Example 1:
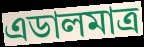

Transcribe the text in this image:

এডালমাত্ৰ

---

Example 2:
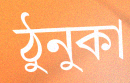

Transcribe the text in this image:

ঠুনুকা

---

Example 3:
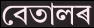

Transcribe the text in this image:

বেতালৰ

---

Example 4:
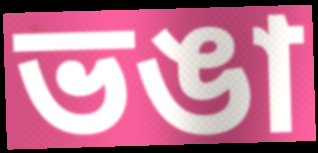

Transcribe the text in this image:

ভঙা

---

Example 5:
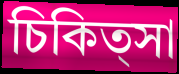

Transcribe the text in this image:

চিকিত্সা